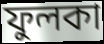
ফুলকা